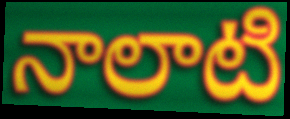
నాలాటి